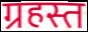
ग्रहस्त